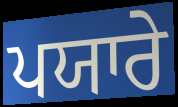
ਪਯਾਰੇ